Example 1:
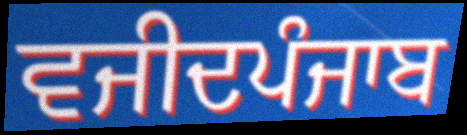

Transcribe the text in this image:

ਵਜੀਦਪੰਜਾਬ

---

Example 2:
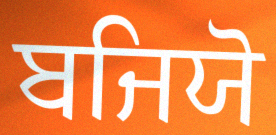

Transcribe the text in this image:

ਬਜਿਯੋ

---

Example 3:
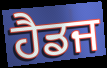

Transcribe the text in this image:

ਹੈਡਜ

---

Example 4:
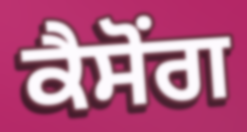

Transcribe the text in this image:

ਕੈਸੋਂਗ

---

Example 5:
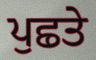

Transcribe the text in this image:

ਪੁਛਤੇ